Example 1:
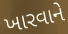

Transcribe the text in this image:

ખારવાને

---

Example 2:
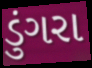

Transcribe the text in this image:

ડુંગરા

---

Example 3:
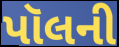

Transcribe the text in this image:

પૉલની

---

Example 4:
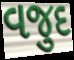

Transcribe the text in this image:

વજુદ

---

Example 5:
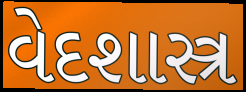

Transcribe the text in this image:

વેદશાસ્ત્ર